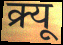
क्र्यू